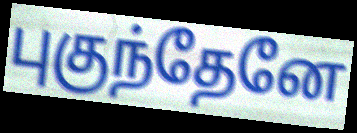
புகுந்தேனே